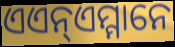
ଏଏନ୍ଏମ୍ମାନେ